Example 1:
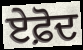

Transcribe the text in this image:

ਏਫ਼ੋਦ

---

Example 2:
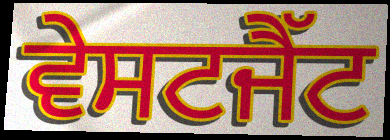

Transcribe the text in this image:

ਵੇਸਟਜੈੱਟ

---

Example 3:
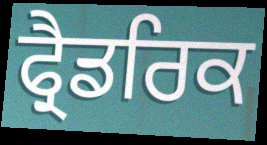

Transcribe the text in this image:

ਫ੍ਰੈਡਰਿਕ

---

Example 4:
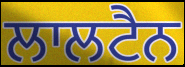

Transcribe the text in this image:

ਲਾਲਟੈਨ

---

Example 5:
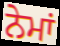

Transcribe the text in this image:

ਨੇਮਾਂ